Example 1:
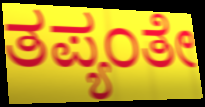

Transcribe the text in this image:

ತಪ್ಯಂತೇ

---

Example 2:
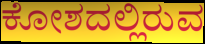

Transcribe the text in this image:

ಕೋಶದಲ್ಲಿರುವ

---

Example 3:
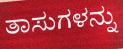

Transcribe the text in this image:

ತಾಸುಗಳನ್ನು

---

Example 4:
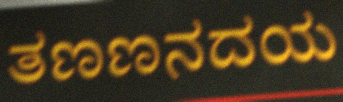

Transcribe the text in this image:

ತಣಣನದಯ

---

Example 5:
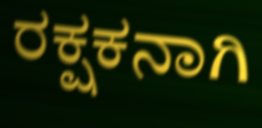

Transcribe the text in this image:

ರಕ್ಷಕನಾಗಿ